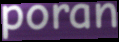
poran